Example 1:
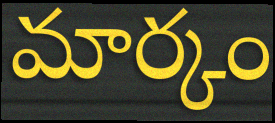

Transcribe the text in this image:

మార్కం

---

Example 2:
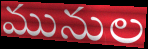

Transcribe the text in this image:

మునుల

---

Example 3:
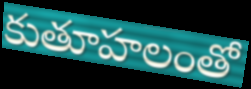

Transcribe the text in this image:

కుతూహలంతో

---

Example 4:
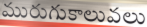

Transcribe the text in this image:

మురుగుకాలువలు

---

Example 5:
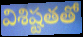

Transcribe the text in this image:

విశిష్టతతో